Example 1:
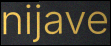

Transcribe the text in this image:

nijave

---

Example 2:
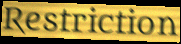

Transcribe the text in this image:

Restriction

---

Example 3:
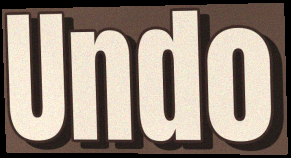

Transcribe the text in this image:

Undo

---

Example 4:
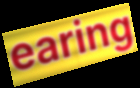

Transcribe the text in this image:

earing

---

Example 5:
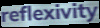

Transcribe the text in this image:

reflexivity